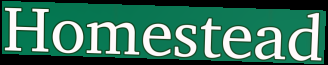
Homestead